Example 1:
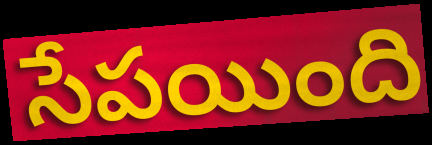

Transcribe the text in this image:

సేపయింది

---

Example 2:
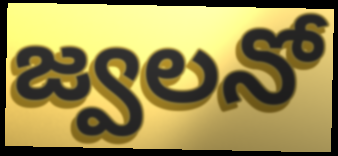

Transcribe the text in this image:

జ్వలనో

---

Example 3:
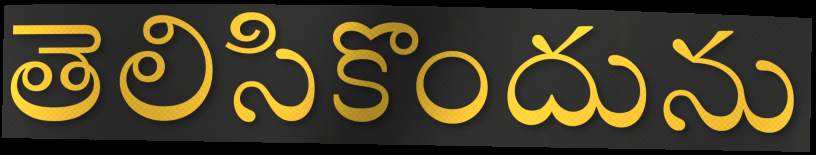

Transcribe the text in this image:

తెలిసికొందును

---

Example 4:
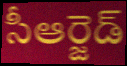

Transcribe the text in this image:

సీఆర్జెడ్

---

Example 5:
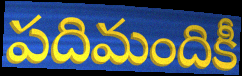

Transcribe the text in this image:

పదిమందికీ